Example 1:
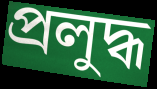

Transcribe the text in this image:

প্রলুদ্ধ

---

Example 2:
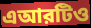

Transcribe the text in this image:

এআরটিও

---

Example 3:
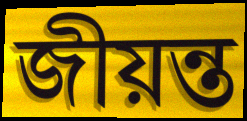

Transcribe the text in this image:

জীয়ন্ত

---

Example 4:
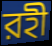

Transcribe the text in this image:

রহী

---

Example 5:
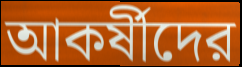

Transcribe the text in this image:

আকর্ষীদের